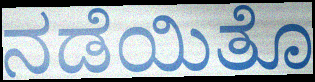
ನಡೆಯಿತೊ